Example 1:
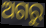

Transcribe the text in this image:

ଅଗରୁ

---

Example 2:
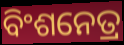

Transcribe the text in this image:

ବିଂଶନେତ୍ର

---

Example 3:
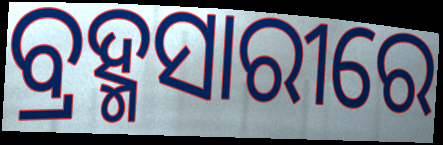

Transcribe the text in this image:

ବ୍ରହ୍ମସାରୀରେ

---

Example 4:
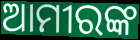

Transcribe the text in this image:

ଆମୀରଙ୍କ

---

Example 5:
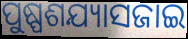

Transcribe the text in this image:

ପୁଷ୍ପଶଯ୍ୟାସଜାଇ